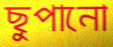
ছুপানো